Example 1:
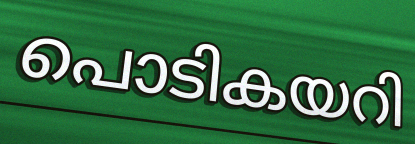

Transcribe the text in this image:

പൊടികയറി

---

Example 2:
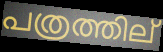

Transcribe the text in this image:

പത്രത്തില്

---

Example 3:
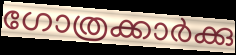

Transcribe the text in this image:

ഗോത്രക്കാർക്കു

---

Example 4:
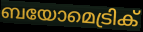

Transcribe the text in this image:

ബയോമെട്രിക്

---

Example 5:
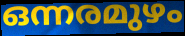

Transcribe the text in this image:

ഒന്നരമുഴം